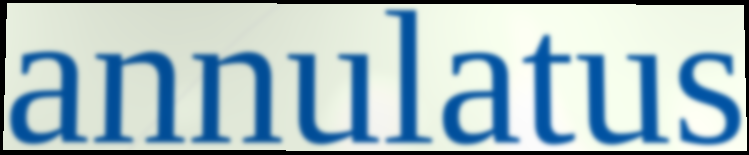
annulatus